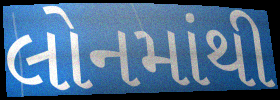
લોનમાંથી